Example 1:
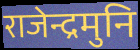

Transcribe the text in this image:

राजेन्द्रमुनि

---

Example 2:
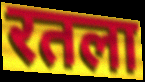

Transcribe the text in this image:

रतला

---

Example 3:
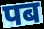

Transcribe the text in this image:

पब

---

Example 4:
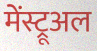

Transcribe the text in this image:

मेंस्ट्रूअल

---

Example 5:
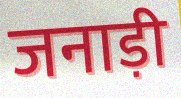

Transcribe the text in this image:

जनाड़ी